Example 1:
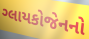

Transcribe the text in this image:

ગ્લાયકોજેનનો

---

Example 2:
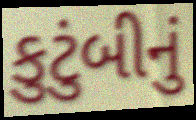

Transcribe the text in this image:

કુટુંબીનું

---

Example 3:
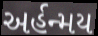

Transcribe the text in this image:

અર્હન્મય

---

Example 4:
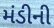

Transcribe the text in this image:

મંડીની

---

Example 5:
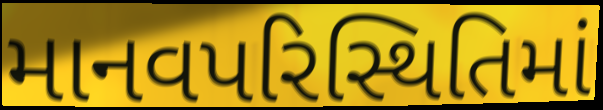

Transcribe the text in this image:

માનવપરિસ્થિતિમાં